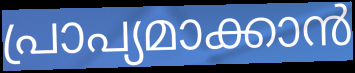
പ്രാപ്യമാക്കാൻ